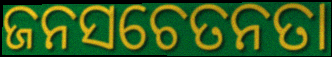
ଜନସଚେତନତା